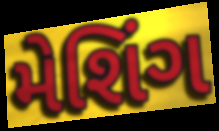
મેશિંગ